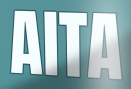
AITA